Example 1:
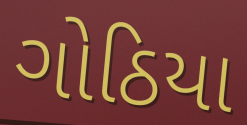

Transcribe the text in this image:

ગોઠિયા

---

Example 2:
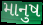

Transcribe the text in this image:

માનુષ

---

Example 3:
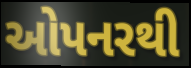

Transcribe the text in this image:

ઓપનરથી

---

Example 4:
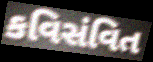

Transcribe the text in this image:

કવિસંવિત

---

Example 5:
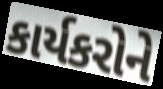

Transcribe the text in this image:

કાર્યકરોને